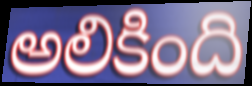
అలికింది